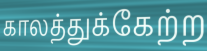
காலத்துக்கேற்ற